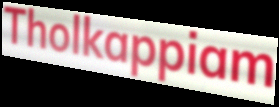
Tholkappiam